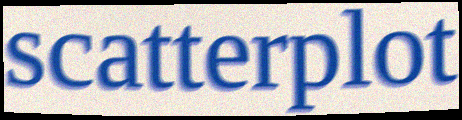
scatterplot